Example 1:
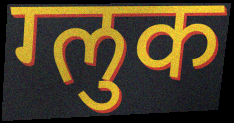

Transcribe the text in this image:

ग्लुक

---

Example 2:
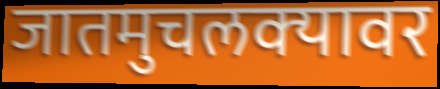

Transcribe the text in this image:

जातमुचलक्यावर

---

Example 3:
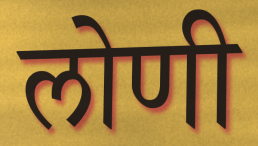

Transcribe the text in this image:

लोणी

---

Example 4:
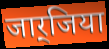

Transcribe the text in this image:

जार्जिया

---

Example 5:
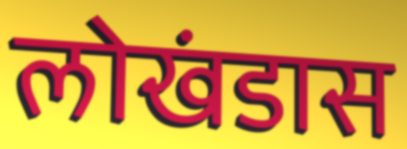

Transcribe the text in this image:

लोखंडास